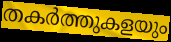
തകർത്തുകളയും